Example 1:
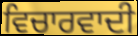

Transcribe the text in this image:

ਵਿਚਾਰਵਾਦੀ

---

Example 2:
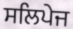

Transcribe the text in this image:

ਸਲਿਪੇਜ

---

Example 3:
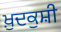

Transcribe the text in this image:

ਖ਼ੁਦਕੁਸ਼ੀ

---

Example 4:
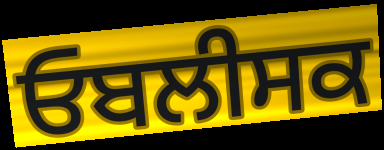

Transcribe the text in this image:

ਓਬਲੀਸਕ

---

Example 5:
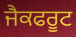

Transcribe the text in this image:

ਜੈਕਫਰੂਟ